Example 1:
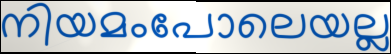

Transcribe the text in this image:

നിയമംപോലെയല്ല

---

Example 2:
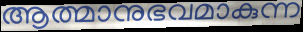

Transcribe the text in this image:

ആത്മാനുഭവമാകുന്ന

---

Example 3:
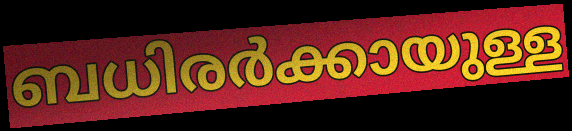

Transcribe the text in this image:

ബധിരർക്കായുള്ള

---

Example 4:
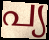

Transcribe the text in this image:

പ്യ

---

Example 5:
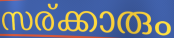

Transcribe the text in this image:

സര്ക്കാരും